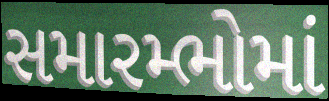
સમારમ્ભોમાં